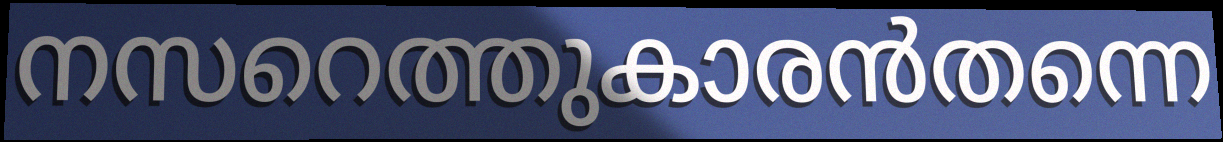
നസറെത്തുകാരൻതന്നെ